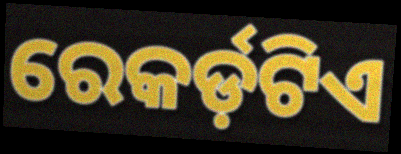
ରେକର୍ଡ଼ଟିଏ